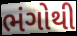
ભંગોથી